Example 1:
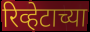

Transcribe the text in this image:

रिव्हेटाच्या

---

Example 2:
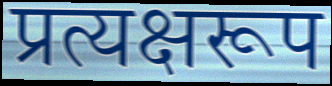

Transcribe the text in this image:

प्रत्यक्षरूप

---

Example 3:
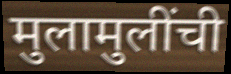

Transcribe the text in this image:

मुलामुलींची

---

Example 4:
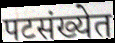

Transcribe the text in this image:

पटसंख्येत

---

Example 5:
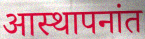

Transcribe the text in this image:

आस्थापनांत